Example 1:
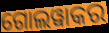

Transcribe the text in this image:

ଗୋଲୱାକର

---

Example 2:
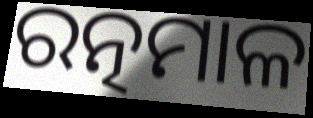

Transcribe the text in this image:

ରତ୍ନମାଳ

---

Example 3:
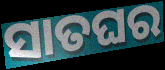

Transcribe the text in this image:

ସାତଘର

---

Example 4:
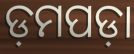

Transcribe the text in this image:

ଡ଼ମପଡ଼ା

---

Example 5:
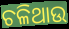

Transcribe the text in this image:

ଚଳିଥାଉ